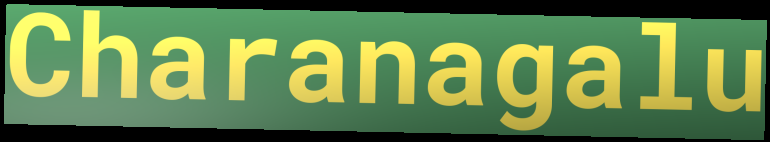
Charanagalu